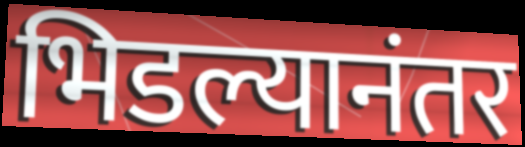
भिडल्यानंतर